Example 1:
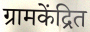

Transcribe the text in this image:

ग्रामकेंद्रित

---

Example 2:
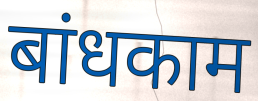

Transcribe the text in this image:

बांधकाम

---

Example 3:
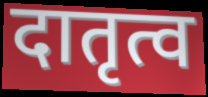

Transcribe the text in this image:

दातृत्व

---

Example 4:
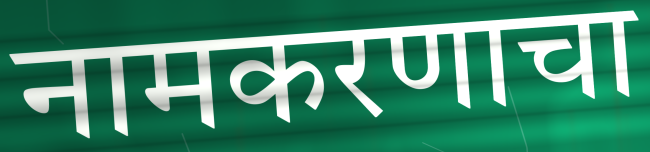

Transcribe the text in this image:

नामकरणाचा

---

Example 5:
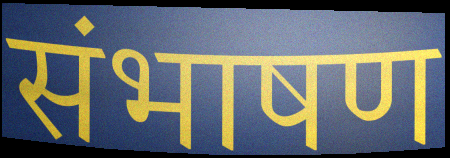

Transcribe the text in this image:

संभाषण